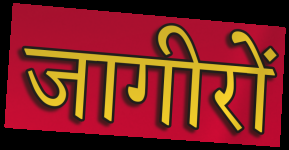
जागीरों